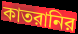
কাতরানির